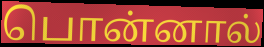
பொன்னால்